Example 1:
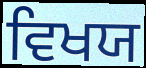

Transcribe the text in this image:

ਵਿਖਯ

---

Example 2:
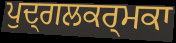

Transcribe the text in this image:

ਪੁਦ੍ਗਲਕਰ੍ਮਕਾ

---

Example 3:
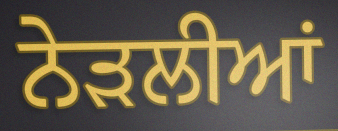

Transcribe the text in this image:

ਨੇੜਲੀਆਂ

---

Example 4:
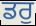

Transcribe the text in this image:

ਡਰੁ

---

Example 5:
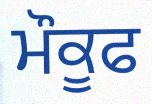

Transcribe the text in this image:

ਮੌਕੂਫ